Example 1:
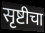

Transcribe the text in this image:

सृष्टीचा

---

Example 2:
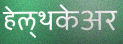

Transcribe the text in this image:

हेल्थकेअर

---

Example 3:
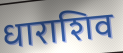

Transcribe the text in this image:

धाराशिव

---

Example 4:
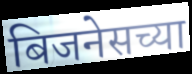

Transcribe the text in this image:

बिजनेसच्या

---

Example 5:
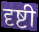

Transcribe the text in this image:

दृष्टी